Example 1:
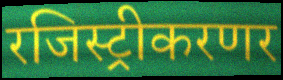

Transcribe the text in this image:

रजिस्ट्रीकरणर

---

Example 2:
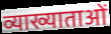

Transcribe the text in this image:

व्याख्याताओं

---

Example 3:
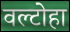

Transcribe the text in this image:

वल्टोहा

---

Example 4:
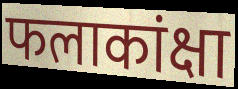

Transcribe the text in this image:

फलाकांक्षा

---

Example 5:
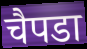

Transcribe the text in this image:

चैपडा